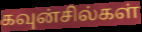
கவுன்சில்கள்